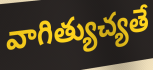
వాగిత్యుచ్యతే